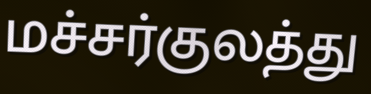
மச்சர்குலத்து